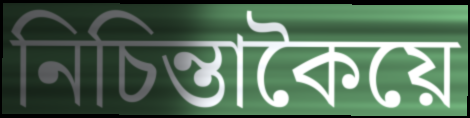
নিচিন্তাকৈয়ে